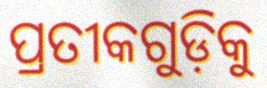
ପ୍ରତୀକଗୁଡ଼ିକୁ